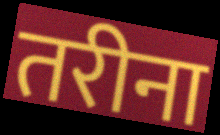
तरीना